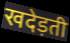
खदेड़ती